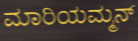
ಮಾರಿಯಮ್ಮನ್